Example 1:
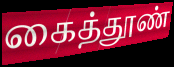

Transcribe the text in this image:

கைத்தூண்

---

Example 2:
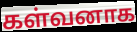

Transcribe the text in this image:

கள்வனாக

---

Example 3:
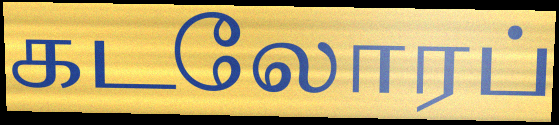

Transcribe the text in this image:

கடலோரப்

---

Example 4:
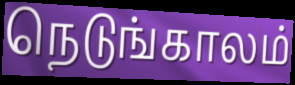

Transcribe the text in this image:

நெடுங்காலம்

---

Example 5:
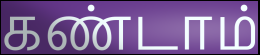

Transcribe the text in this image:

கண்டாம்